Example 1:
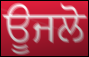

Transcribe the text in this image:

ਊਜਲੋ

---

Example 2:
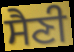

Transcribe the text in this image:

ਸੈਣੀ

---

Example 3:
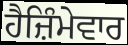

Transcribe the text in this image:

ਹੈਜ਼ਿੰਮੇਵਾਰ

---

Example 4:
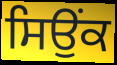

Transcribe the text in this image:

ਸਿਉਂਕ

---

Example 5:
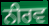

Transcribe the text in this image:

ਨੀਰਵ